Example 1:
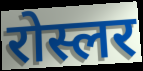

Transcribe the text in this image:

रोस्लर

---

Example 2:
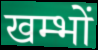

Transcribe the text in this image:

खम्भों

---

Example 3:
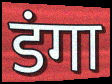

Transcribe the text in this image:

डंगा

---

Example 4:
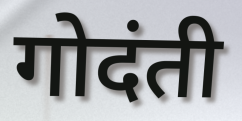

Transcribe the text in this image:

गोदंती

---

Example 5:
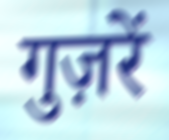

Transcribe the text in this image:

गुज़रें